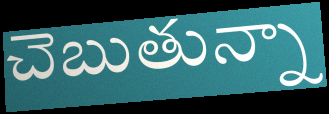
చెబుతున్నా